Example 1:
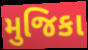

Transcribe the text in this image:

મુજિકા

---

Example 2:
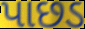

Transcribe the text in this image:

પાછડ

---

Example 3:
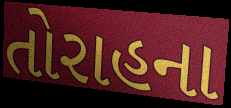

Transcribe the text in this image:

તોરાહના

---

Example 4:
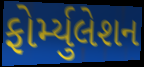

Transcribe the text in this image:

ફોર્મ્યુલેશન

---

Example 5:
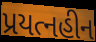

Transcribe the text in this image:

પ્રયત્નહીન